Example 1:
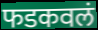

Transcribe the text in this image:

फडकवलं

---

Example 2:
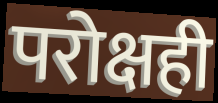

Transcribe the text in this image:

परोक्षही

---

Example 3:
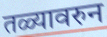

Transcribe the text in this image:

तळ्यावरुन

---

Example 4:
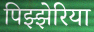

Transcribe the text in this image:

पिझ्झेरिया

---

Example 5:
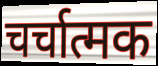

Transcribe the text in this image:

चर्चात्मक